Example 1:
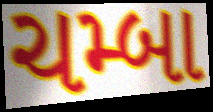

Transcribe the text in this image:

ચમ્બા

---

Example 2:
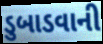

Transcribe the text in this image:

ડુબાડવાની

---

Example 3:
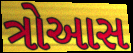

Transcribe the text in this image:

ત્રોઆસ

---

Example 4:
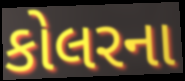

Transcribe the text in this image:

કોલરના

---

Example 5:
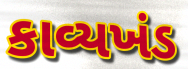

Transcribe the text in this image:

કાવ્યખંડ